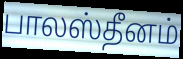
பாலஸ்தீனம்